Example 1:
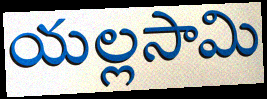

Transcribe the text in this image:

యల్లసామి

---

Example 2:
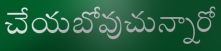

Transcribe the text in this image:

చేయబోవుచున్నారో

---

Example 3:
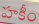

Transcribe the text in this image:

హకీం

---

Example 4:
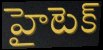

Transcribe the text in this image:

హైటెక్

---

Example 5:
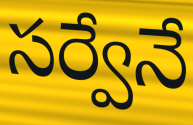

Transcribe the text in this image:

సర్వేనే